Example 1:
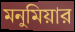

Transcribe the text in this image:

মনুমিয়ার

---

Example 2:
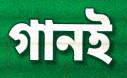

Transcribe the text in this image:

গানই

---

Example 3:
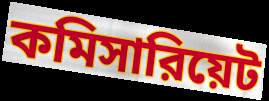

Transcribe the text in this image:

কমিসারিয়েট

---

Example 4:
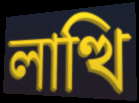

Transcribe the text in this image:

লাত্থি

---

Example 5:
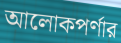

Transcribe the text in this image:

আলোকপর্ণার